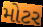
મોટર